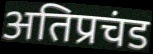
अतिप्रचंड